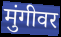
मुंगीवर